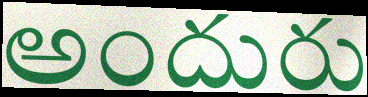
అందురు